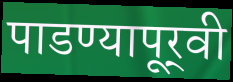
पाडण्यापूर्वी